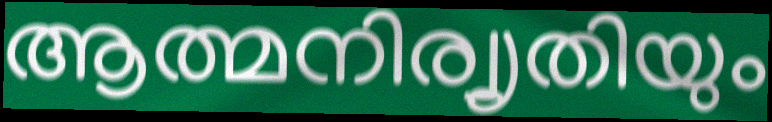
ആത്മനിര്വൃതിയും